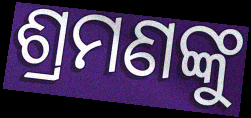
ଶ୍ରମଣଙ୍କୁ